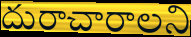
దురాచారాలని